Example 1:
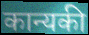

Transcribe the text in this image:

कान्यकी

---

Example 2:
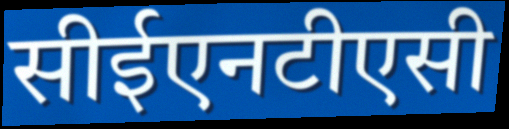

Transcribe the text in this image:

सीईएनटीएसी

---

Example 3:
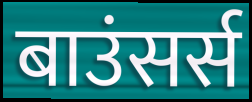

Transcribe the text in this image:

बाउंसर्स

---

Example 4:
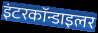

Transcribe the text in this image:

इंटरकॉन्डाइलर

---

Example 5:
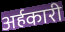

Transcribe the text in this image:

अर्हकारी